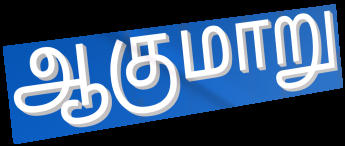
ஆகுமாறு